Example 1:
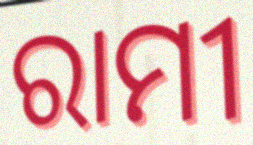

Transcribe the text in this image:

ରାମୀ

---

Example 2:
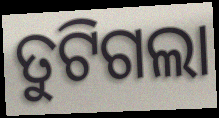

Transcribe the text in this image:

ତୁଟିଗଲା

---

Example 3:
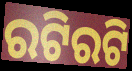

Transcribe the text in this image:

ରଟିରଟି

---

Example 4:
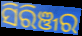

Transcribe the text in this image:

ସିରିଞ୍ଜର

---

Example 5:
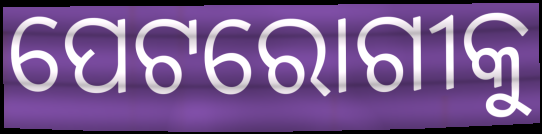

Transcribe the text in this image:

ପେଟରୋଗୀକୁ